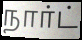
நார்ட்